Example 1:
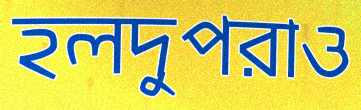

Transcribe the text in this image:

হলদুপরাও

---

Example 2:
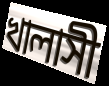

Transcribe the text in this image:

খালাসী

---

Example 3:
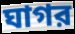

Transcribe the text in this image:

ঘাগর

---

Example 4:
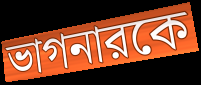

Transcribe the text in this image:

ভাগনারকে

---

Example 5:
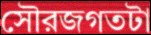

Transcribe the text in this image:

সৌরজগতটা